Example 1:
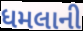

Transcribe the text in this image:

ધમલાની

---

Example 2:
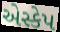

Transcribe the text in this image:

એસ્કેપ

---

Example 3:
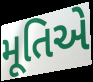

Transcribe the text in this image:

મૂતિએ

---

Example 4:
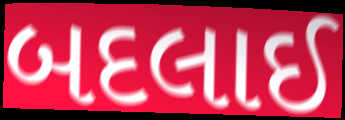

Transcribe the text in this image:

બદલાઈ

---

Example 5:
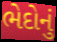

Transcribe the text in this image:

ભેદોનું